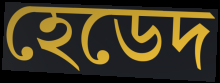
হেডেদ